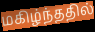
மகிழ்ந்ததில்